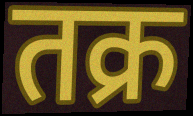
तक्र